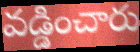
వడ్డించారు